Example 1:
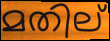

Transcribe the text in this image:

മതില്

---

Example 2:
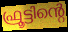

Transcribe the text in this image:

ഫ്രൂട്ടിന്റെ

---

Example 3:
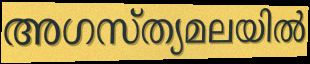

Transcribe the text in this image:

അഗസ്ത്യമലയിൽ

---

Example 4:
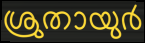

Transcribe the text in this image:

ശ്രുതായുർ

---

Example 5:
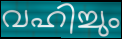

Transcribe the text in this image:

വഹിച്ചും